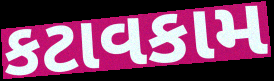
કટાવકામ